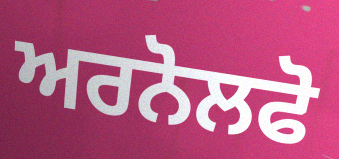
ਅਰਨੋਲਫੋ